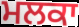
ਮਲਕਾ